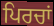
ਪਿਰਚਾਂ